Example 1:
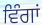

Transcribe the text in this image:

ਵਿੰਗਾਂ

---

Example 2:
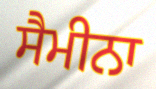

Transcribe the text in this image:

ਸੈਮੀਨਾ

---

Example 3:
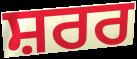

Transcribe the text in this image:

ਸ਼ਰਰ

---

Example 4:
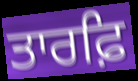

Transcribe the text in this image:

ਤਾਰਫ਼ਿ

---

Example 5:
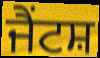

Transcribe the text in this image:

ਜੈਂਟਸ਼